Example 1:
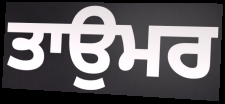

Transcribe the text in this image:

ਤਾਉਮਰ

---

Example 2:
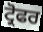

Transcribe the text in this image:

ਟ੍ਰੋਫਰ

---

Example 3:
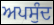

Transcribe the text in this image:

ਅਪਸੁੰਦ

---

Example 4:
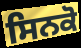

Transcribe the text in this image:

ਸਿਨਕੋ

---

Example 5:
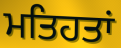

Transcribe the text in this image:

ਮਤਿਹਤਾਂ